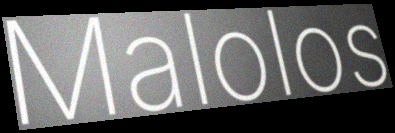
Malolos